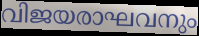
വിജയരാഘവനും